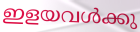
ഇളയവൾക്കു